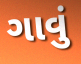
ગાવું